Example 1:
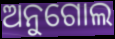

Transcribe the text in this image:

ଅନୁଗୋଲ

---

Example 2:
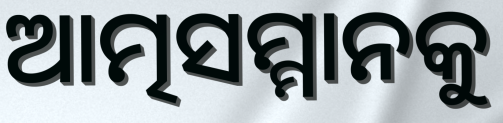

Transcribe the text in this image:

ଆତ୍ମସମ୍ମାନକୁ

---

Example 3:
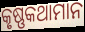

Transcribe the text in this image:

କୃଷ୍ଣକଥାମାନ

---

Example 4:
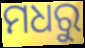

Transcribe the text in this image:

ମଧରୁ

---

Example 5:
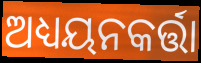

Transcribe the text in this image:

ଅଧ୍ୟୟନକର୍ତ୍ତା